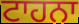
ਟਾਹਨਾ